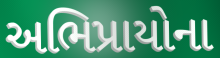
અભિપ્રાયોના